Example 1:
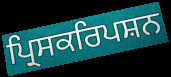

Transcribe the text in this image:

ਪ੍ਰਿਸਕਰਿਪਸ਼ਨ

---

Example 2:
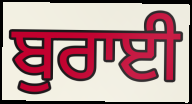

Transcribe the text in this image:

ਬੁਰਾਈ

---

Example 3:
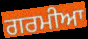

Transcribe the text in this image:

ਗਰਮੀਆ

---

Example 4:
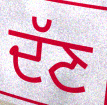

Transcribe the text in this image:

ਦੱਣ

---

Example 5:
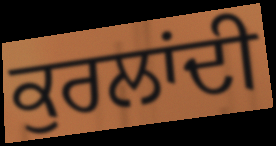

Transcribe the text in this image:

ਕੁਰਲਾਂਦੀ